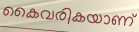
കൈവരികയാണ്